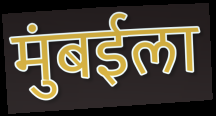
मुंबईला